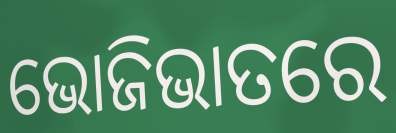
ଭୋଜିଭାତରେ